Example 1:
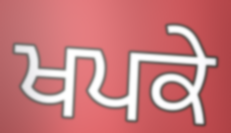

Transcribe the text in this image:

ਖਪਕੇ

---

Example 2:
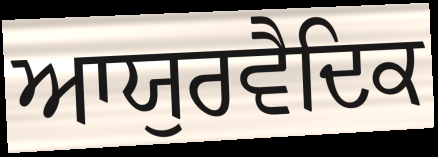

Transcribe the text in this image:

ਆਯੁਰਵੈਦਿਕ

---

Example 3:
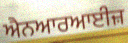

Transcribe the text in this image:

ਐਨਆਰਆਈਜ਼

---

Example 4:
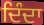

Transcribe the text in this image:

ਦਿੰਦਾ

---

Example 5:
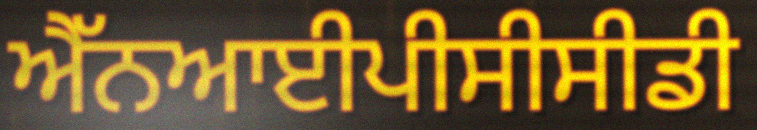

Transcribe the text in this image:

ਐੱਨਆਈਪੀਸੀਸੀਡੀ